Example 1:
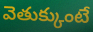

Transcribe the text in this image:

వెతుక్కుంటే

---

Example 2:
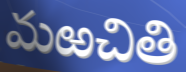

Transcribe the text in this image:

మఱచితి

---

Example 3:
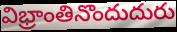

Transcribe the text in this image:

విభ్రాంతినొందుదురు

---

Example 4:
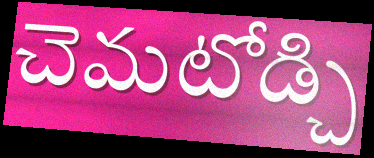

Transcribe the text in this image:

చెమటోడ్చి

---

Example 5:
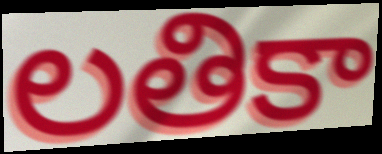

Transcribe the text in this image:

లతికా